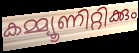
കമ്മ്യൂണിറ്റിക്കും